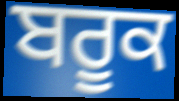
ਬਰੂਕ